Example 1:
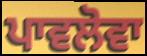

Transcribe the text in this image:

ਪਾਵਲੋਵਾ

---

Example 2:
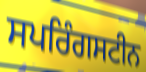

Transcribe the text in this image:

ਸਪਰਿੰਗਸਟੀਨ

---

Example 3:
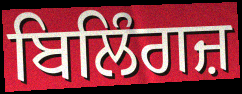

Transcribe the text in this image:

ਬਿਲਿੰਗਜ਼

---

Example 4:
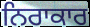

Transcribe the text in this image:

ਨਿਰਾਕਾਰ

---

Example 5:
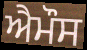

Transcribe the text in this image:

ਐਮੌਸ